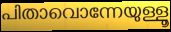
പിതാവൊന്നേയുള്ളൂ